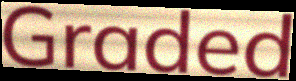
Graded